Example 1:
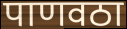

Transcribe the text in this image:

पाणवठा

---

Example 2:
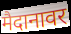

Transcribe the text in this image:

मैदानावर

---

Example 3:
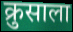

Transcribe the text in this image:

क्रुसाला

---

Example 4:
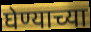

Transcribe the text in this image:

घेण्याच्या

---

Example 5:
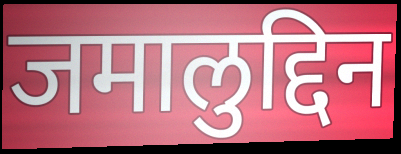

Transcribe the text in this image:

जमालुद्दिन